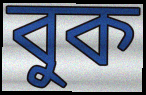
বুক